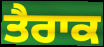
ਤੈਰਾਕ